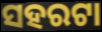
ସହରଟା